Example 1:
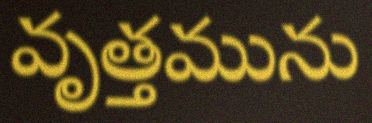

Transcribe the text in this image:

వృత్తమును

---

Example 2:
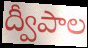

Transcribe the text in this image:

ద్వీపాల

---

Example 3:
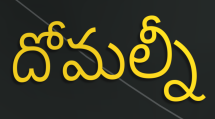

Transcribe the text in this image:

దోమల్నీ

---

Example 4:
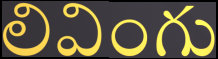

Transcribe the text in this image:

లివింగు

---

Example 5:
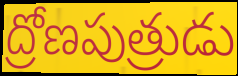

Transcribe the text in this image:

ద్రోణపుత్రుడు